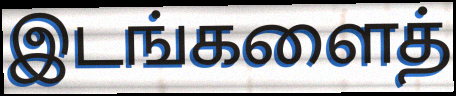
இடங்களைத்